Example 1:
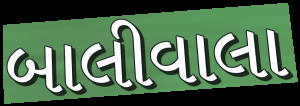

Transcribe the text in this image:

બાલીવાલા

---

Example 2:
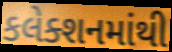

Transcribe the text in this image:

કલેક્શનમાંથી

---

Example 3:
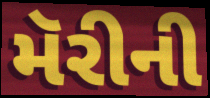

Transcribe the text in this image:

મૅરીની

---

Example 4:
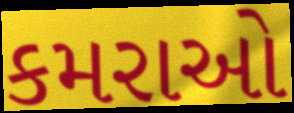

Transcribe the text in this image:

કમરાઓ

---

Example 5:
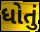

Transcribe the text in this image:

ધોતું